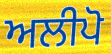
ਅਲੀਪੋ